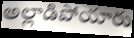
అల్లాడిపోయారు